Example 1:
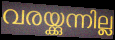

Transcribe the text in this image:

വരയ്ക്കുന്നില്ല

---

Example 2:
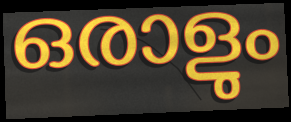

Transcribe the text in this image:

ഒരാളും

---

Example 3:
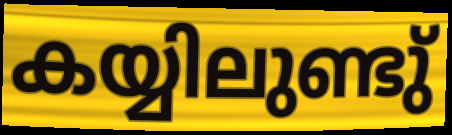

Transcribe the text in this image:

കയ്യിലുണ്ടു്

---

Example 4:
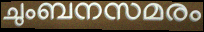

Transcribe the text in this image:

ചുംബനസമരം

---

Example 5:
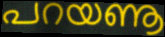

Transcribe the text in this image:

പറയണൂ